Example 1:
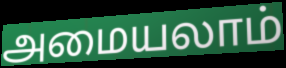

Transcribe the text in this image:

அமையலாம்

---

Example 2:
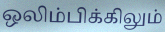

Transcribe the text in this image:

ஒலிம்பிக்கிலும்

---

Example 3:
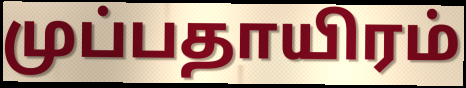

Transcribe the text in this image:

முப்பதாயிரம்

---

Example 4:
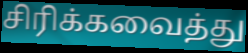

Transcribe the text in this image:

சிரிக்கவைத்து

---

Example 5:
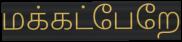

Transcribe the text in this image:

மக்கட்பேறே